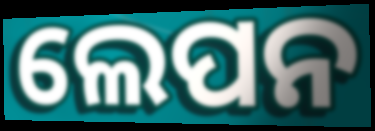
ଲେପନ